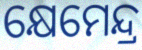
କ୍ଷେମେନ୍ଦ୍ର